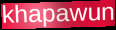
khapawun